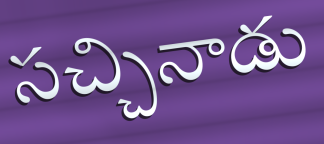
సచ్చినాడు